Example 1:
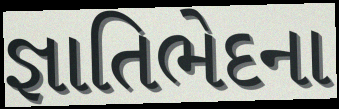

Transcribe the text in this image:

જ્ઞાતિભેદના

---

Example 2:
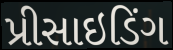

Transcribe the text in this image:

પ્રીસાઇડિંગ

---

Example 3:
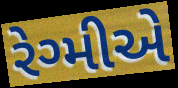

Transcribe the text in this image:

રેગ્મીએ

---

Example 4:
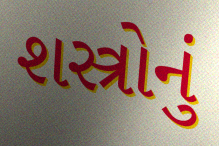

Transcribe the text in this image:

શસ્ત્રોનું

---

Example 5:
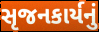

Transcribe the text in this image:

સૃજનકાર્યનું